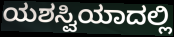
ಯಶಸ್ವಿಯಾದಲ್ಲಿ